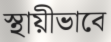
স্থায়ীভাবে